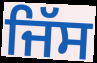
ਜਿੱਸ